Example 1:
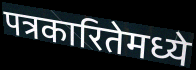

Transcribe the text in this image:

पत्रकारितेमध्ये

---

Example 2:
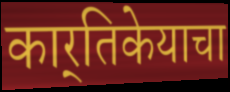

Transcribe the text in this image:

कार्तिकेयाचा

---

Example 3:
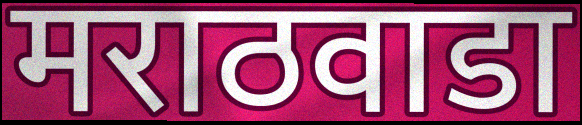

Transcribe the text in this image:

मराठवाडा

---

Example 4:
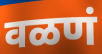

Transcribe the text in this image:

वळणं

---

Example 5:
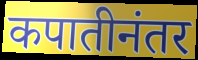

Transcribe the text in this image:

कपातीनंतर